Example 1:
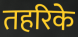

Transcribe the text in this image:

तहरिके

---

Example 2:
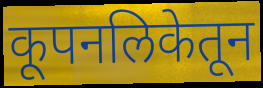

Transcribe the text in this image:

कूपनलिकेतून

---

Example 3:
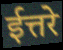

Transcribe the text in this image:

ईत्तरे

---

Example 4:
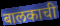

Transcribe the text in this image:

बालकाची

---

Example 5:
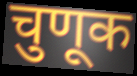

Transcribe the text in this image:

चुणूक